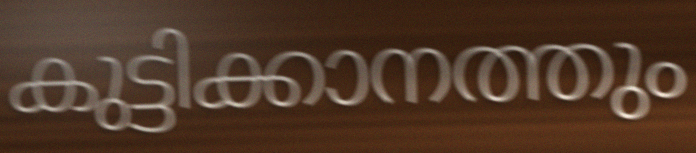
കുട്ടിക്കാനത്തും